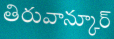
తిరువాన్కూర్